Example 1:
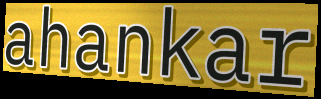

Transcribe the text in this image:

ahankar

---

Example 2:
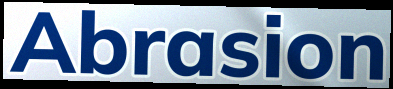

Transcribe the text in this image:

Abrasion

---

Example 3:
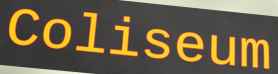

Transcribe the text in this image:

Coliseum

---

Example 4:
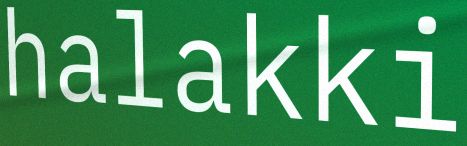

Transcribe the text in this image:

halakki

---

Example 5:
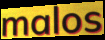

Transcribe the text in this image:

malos